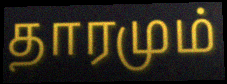
தாரமும்